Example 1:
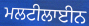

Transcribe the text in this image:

ਮਲਟੀਲਾਈਨ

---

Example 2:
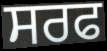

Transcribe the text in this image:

ਸਰਫ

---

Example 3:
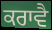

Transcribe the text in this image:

ਕਰਾਵੈ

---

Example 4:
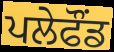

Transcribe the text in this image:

ਪਲੇਫੌਂਡ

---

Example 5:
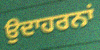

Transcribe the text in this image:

ਉਦਾਹਰਨਾਂ